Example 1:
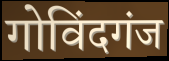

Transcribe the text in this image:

गोविंदगंज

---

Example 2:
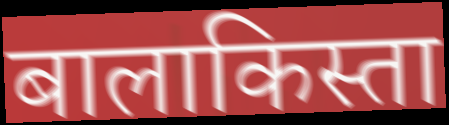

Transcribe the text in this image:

बालाकिस्ता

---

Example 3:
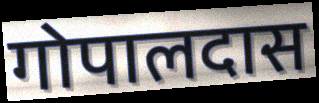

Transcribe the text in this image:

गोपालदास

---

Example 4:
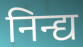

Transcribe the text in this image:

निन्द्य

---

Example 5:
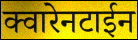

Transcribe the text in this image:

क्वारेनटाईन